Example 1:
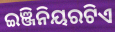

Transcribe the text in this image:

ଇଞ୍ଜିନିୟରଟିଏ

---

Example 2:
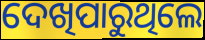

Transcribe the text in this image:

ଦେଖିପାରୁଥିଲେ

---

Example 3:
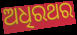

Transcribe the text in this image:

ଅଧିରଥର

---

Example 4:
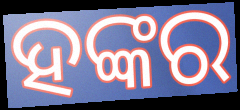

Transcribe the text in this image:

ହଙ୍କର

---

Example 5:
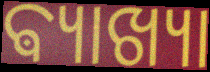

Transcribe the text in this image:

ଵ୍ୟାଖ୍ୟା